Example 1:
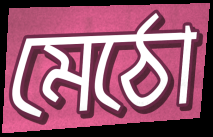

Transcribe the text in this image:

মেঠো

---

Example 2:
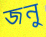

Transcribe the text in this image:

জনু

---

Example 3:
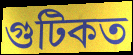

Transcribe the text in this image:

গুটিকত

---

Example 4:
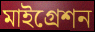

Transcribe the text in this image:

মাইগ্রেশন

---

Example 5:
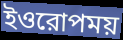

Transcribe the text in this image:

ইওরোপময়